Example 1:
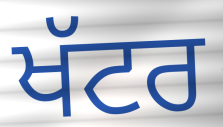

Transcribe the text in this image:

ਖੱਟਰ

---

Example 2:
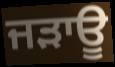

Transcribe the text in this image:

ਜੜਾਊ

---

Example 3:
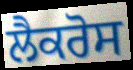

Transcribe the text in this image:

ਲੈਕਰੋਸ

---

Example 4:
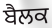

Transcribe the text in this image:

ਬੈਲਕ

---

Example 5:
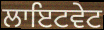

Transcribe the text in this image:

ਲਾਇਟਵੇਟ